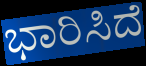
ಭಾರಿಸಿದೆ